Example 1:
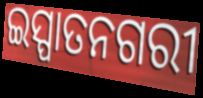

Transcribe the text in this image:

ଇସ୍ପାତନଗରୀ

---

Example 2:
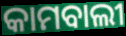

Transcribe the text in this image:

କାମବାଲୀ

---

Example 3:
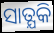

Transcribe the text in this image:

ସାତ୍ଯକି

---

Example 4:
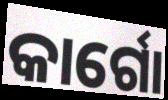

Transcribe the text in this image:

କାର୍ଗୋ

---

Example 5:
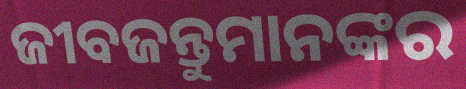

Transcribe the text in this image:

ଜୀବଜନ୍ତୁମାନଙ୍କର